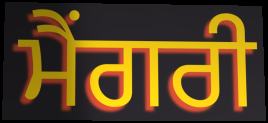
ਮੈਂਗਰੀ